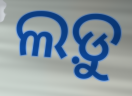
ଲଡ଼ୁ